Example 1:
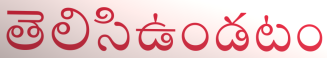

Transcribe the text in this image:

తెలిసిఉండటం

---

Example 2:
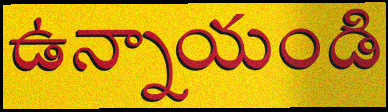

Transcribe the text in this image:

ఉన్నాయండి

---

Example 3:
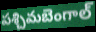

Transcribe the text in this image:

పశ్చిమబెంగాల్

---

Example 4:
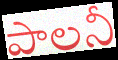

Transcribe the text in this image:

పాలనీ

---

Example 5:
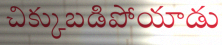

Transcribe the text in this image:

చిక్కుబడిపోయాడు